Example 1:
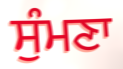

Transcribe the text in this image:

ਸੁੰਮਣਾ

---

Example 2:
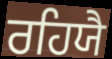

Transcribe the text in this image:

ਰਹਿਯੈ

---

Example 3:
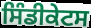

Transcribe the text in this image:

ਸਿੰਡੀਕੇਟਸ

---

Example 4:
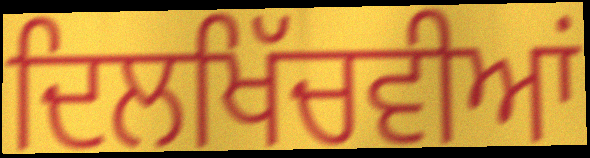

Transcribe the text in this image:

ਦਿਲਖਿੱਚਵੀਆਂ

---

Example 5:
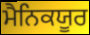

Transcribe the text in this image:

ਮੈਨਿਕਯੂਰ